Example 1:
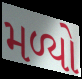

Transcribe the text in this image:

મળ્યો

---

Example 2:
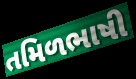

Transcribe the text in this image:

તમિળભાષી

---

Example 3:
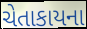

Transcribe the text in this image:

ચેતાકાયના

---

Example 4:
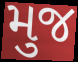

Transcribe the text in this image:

મુજ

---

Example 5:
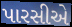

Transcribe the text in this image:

પારસીએ